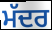
ਮੱਦਰ